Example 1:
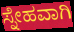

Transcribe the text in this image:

ಸ್ನೇಹವಾಗಿ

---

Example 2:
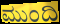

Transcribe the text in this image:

ಮುಂದಿ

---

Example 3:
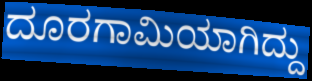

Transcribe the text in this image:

ದೂರಗಾಮಿಯಾಗಿದ್ದು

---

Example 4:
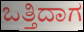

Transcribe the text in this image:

ಒತ್ತಿದಾಗ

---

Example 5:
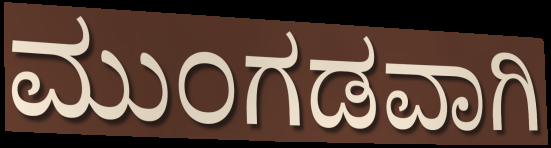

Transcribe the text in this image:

ಮುಂಗಡವಾಗಿ